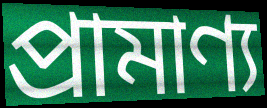
প্রামাণ্য